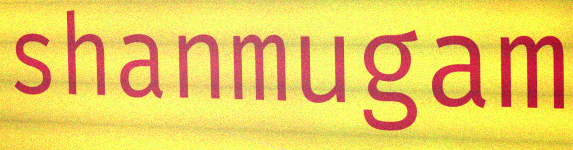
shanmugam